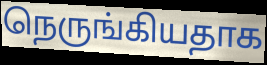
நெருங்கியதாக